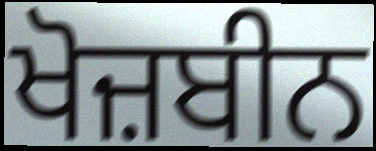
ਖੋਜ਼ਬੀਨ